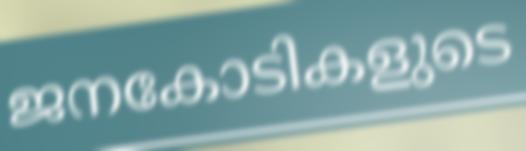
ജനകോടികളുടെ